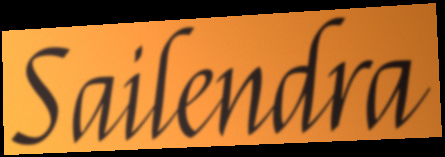
Sailendra